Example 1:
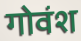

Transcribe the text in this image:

गोवंश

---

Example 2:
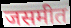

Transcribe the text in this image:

जसमीत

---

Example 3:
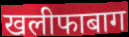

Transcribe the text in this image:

खलीफाबाग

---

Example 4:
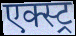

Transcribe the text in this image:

एक्स्ट्र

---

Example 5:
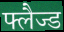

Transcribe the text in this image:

फ्लैज्ड